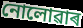
নোলোৱাৰ